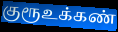
குரூஉக்கண்